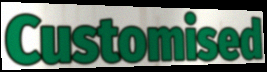
Customised